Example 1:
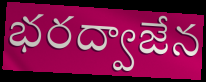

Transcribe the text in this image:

భరద్వాజేన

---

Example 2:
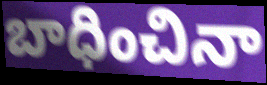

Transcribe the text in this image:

బాధించినా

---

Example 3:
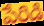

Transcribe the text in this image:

పేరిడి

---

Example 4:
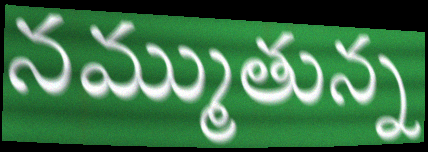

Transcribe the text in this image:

నమ్ముతున్న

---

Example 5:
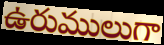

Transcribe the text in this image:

ఉరుములుగా